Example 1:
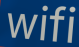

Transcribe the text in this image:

wifi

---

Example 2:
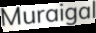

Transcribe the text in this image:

Muraigal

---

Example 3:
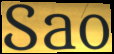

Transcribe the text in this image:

Sao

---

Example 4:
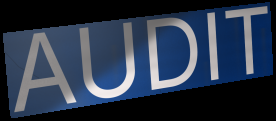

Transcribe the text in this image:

AUDIT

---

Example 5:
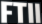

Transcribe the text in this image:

FTII